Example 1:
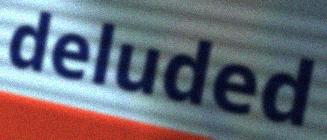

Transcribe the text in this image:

deluded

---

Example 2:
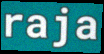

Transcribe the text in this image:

raja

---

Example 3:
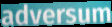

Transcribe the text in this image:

adversum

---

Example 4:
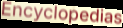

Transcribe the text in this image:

Encyclopedias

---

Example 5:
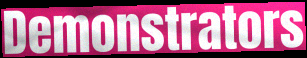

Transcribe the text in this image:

Demonstrators